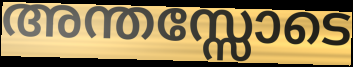
അന്തസ്സോടെ